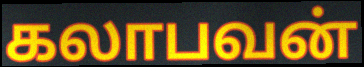
கலாபவன்